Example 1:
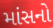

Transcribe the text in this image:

માંસનો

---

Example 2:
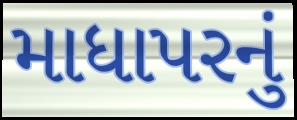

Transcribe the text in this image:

માધાપરનું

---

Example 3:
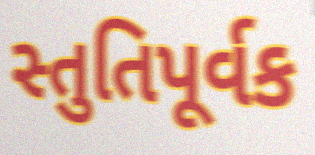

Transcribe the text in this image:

સ્તુતિપૂર્વક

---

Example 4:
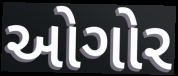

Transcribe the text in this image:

ઓગોર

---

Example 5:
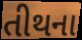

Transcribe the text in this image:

તીથના